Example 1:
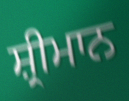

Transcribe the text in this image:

ਸ਼੍ਰੀਮਾਨ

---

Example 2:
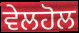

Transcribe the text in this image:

ਵੇਲਹੋਲ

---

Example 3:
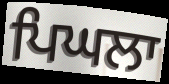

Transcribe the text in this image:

ਪਿਘਲਾ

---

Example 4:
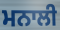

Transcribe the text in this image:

ਮਨਾਲੀ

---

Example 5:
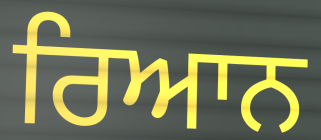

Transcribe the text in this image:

ਰਿਆਨ